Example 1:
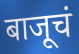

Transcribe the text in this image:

बाजूचं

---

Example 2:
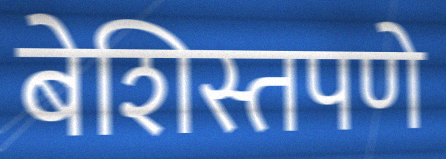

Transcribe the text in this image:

बेशिस्तपणे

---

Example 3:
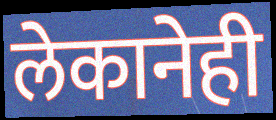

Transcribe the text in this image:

लेकानेही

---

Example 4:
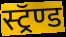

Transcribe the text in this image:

स्ट्रॅण्ड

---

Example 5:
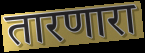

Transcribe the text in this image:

तारणारा